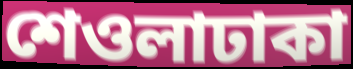
শেওলাঢাকা